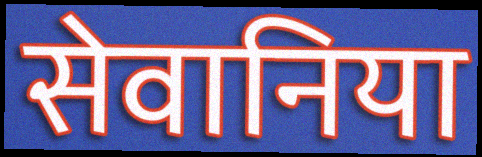
सेवानिया